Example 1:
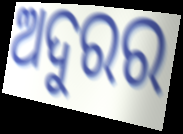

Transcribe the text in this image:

ଅଦୁରର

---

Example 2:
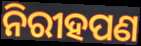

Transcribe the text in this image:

ନିରୀହପଣ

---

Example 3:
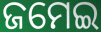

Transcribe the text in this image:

ଜମେଇ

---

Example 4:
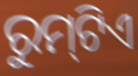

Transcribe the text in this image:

ରୁମ୍‌ଟିଏ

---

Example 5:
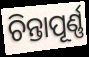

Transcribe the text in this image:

ଚିନ୍ତାପୂର୍ଣ୍ଣ